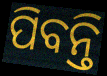
ପିବନ୍ତି